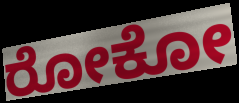
ರೋಕೋ